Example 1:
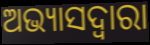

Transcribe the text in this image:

ଅଭ୍ୟାସଦ୍ୱାରା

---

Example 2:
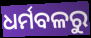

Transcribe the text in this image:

ଧର୍ମବଳରୁ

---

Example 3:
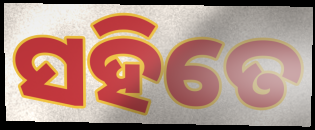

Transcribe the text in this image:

ସହିତେ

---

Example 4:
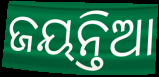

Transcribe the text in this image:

ଜୟନ୍ତିଆ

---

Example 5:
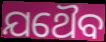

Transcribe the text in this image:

ଯଥୈବ